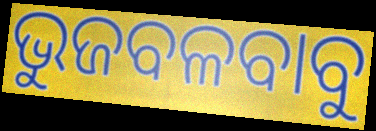
ଭୁଜବଳବାବୁ